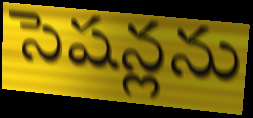
సెషన్లను